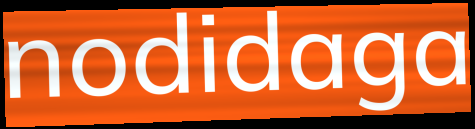
nodidaga